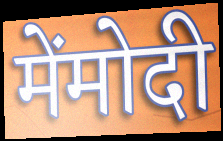
मेंमोदी